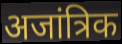
अजांत्रिक